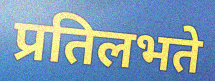
प्रतिलभते